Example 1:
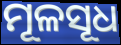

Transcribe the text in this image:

ମୂଳସୂଧ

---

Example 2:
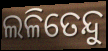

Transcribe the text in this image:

ଲଳିତେନ୍ଦୁ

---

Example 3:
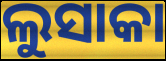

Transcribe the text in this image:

ଲୁସାକା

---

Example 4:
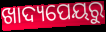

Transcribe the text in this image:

ଖାଦ୍ୟପେୟରୁ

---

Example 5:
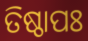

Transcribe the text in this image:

ତିଷ୍ଠାପଃ